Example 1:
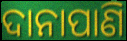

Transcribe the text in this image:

ଦାନାପାଣି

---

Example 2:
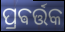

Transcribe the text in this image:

ପ୍ରଵର୍ତ୍ତକ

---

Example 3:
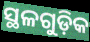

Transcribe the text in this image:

ସ୍ଥଳଗୁଡ଼ିକ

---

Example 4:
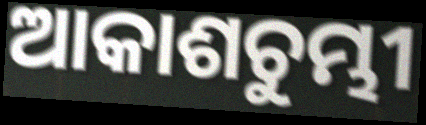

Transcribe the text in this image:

ଆକାଶଚୁମ୍ଭୀ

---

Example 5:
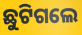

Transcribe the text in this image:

ଛୁଟିଗଲେ